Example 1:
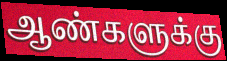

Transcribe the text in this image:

ஆண்களுக்கு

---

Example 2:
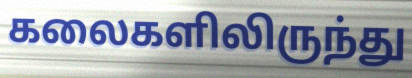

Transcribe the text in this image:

கலைகளிலிருந்து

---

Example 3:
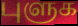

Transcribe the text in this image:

புளுக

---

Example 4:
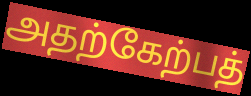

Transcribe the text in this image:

அதற்கேற்பத்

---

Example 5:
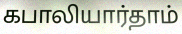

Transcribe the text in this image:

கபாலியார்தாம்